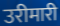
उरीमारी